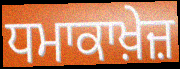
ਧਮਾਕਾਖ਼ੇਜ਼